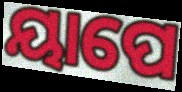
ୟାପେ